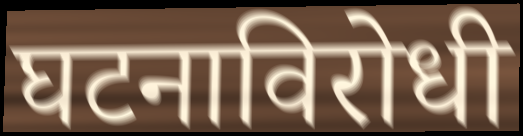
घटनाविरोधी